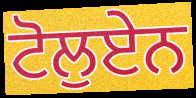
ਟੋਲੁਏਨ